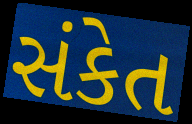
સંકેત